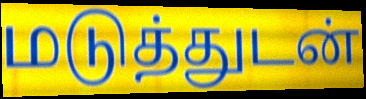
மடுத்துடன்